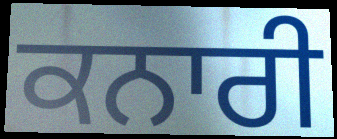
ਕਨਾਰੀ